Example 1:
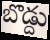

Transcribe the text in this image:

బొడ్దు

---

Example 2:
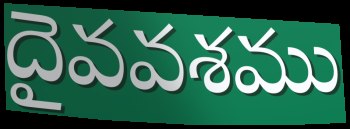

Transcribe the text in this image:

దైవవశము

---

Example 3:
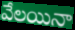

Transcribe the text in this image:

వేలయినా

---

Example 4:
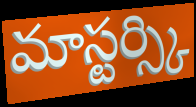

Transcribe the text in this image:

మాస్టర్స్కి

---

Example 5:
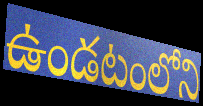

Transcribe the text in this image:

ఉండటంలోని